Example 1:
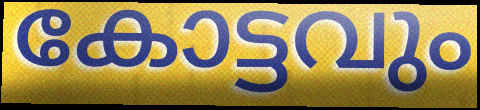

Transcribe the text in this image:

കോട്ടവും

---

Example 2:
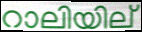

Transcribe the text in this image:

റാലിയില്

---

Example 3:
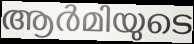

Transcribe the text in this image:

ആർമിയുടെ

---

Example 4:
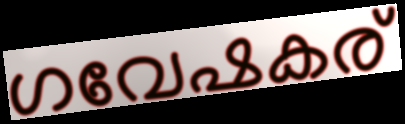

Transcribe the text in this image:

ഗവേഷകര്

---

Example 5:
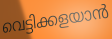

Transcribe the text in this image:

വെട്ടിക്കളയാൻ